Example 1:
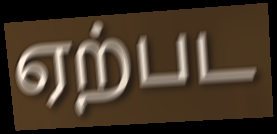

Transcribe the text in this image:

ஏற்பட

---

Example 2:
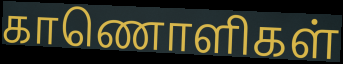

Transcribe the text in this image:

காணொளிகள்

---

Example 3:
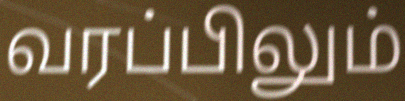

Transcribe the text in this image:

வரப்பிலும்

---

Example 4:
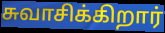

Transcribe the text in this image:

சுவாசிக்கிறார்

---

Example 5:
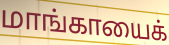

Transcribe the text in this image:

மாங்காயைக்